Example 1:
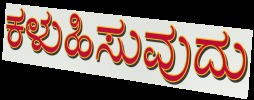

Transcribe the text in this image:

ಕಳುಹಿಸುವುದು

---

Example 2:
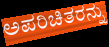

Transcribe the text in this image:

ಅಪರಿಚಿತರನ್ನು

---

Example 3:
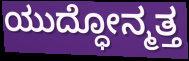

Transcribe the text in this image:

ಯುದ್ಧೋನ್ಮತ್ತ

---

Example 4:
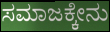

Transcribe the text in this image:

ಸಮಾಜಕ್ಕೇನು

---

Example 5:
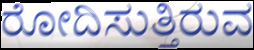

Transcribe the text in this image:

ರೋದಿಸುತ್ತಿರುವ